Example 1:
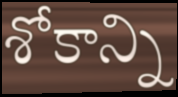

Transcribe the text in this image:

శోకాన్ని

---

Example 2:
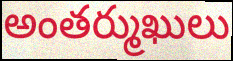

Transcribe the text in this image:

అంతర్ముఖులు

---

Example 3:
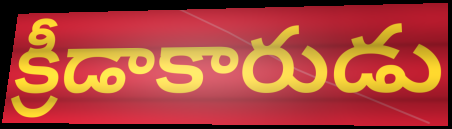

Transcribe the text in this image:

క్రీడాకారుడు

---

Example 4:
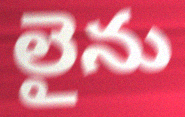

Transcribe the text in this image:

లైను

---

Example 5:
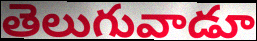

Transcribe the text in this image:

తెలుగువాడూ